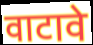
वाटावे